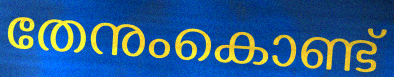
തേനുംകൊണ്ട്